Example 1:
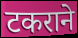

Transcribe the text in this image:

टकराने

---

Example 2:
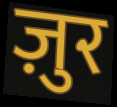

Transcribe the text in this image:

ज़ुर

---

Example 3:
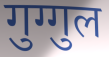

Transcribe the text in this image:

गुग्गुल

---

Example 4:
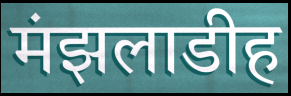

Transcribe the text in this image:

मंझलाडीह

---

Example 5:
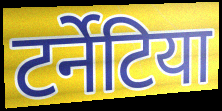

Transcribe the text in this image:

टर्नेटिया